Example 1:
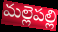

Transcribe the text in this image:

మల్లెపల్లి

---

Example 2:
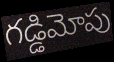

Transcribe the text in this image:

గడ్డిమోపు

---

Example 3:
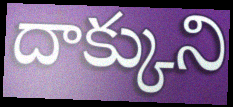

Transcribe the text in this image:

దాక్కుని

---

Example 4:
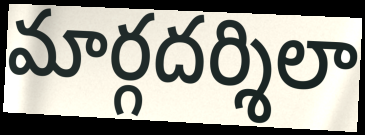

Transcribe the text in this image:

మార్గదర్శిలా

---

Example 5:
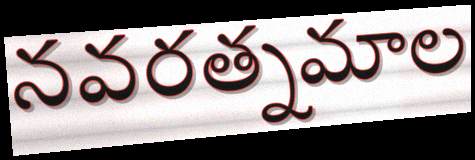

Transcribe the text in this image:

నవరత్నమాల